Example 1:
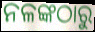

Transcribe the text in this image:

ନଳଙ୍କଠାରୁ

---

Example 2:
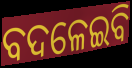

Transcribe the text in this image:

ବଦଳେଇବି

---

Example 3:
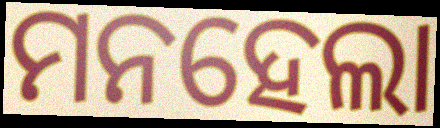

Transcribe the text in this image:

ମନହେଲା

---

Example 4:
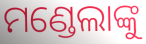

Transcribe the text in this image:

ମଣ୍ଡେଲାଙ୍କୁ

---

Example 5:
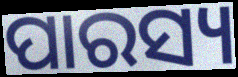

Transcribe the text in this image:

ପାରସ୍ୟ